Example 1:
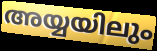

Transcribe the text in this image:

അയ്യയിലും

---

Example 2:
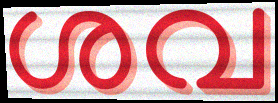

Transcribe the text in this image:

ശവ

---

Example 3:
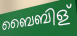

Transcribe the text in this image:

ബൈബിള്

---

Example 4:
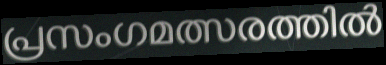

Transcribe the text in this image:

പ്രസംഗമത്സരത്തിൽ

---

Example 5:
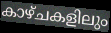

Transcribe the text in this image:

കാഴ്ചകളിലും